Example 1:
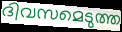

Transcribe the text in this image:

ദിവസമെടുത്ത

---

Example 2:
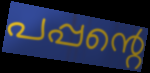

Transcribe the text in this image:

പപ്പന്റെ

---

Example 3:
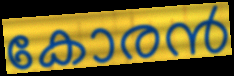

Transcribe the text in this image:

കോരൻ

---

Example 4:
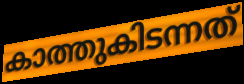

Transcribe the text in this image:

കാത്തുകിടന്നത്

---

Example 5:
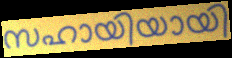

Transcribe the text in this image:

സഹായിയായി